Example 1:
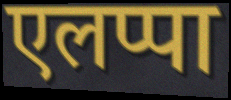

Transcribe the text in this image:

एलप्पा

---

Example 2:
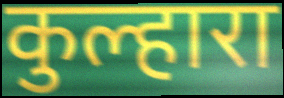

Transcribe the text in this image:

कुल्हारा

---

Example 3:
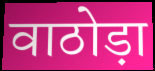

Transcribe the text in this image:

वाठोड़ा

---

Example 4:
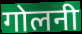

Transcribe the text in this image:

गोलनी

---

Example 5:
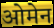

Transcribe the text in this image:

ओमेन